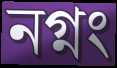
নগ্নং